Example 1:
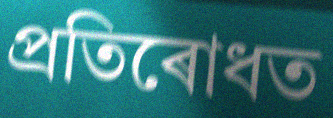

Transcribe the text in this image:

প্ৰতিৰোধত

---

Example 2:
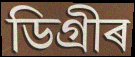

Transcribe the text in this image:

ডিগ্ৰীৰ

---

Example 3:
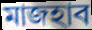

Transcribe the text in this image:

মাজহাব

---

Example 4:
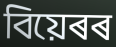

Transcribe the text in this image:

বিয়েৰৰ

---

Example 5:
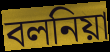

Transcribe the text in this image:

বলনিয়া